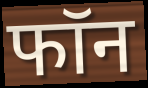
फॉन